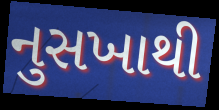
નુસખાથી